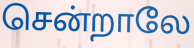
சென்றாலே